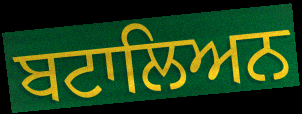
ਬਟਾਲਿਅਨ